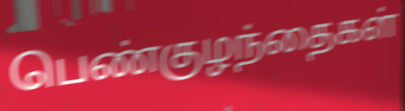
பெண்குழந்தைகள்